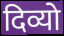
दिव्यो